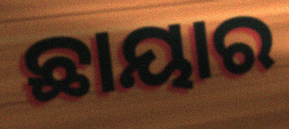
ଛାୟାର